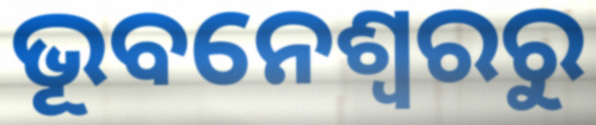
ଭୂବନେଶ୍ୱରରୁ